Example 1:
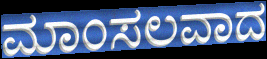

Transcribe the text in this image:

ಮಾಂಸಲವಾದ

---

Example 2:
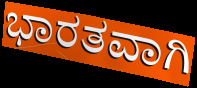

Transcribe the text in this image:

ಭಾರತವಾಗಿ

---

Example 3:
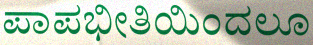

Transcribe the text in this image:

ಪಾಪಭೀತಿಯಿಂದಲೂ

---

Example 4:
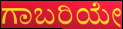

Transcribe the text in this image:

ಗಾಬರಿಯೇ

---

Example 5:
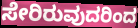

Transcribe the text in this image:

ಸೇರಿರುವುದರಿಂದ